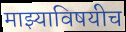
माझ्याविषयीच